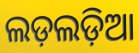
ଲଡ଼ଲଡ଼ିଆ